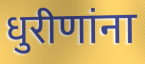
धुरीणांना